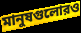
মানুষগুলোরও